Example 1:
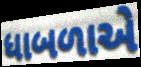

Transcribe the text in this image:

ધાબળાએ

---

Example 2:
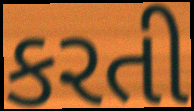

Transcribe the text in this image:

કરતી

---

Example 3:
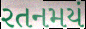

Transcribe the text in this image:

રતનમયં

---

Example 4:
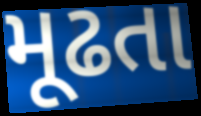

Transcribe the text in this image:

મૂઢતા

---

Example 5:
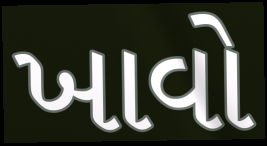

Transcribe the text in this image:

ખાવો